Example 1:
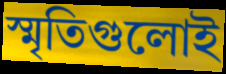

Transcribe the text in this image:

স্মৃতিগুলোই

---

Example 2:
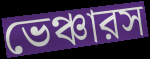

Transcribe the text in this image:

ভেঞ্চারস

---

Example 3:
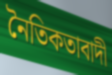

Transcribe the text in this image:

নৈতিকতাবাদী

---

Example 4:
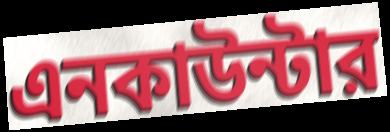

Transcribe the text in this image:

এনকাউন্টার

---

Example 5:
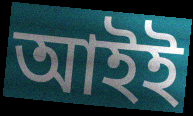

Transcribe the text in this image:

আইই